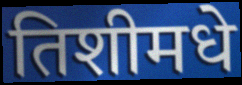
तिशीमधे